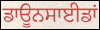
ਡਾਊਨਸਾਈਡਾਂ